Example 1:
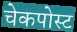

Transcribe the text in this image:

चेकपोस्ट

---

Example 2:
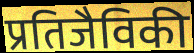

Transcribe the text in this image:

प्रतिजैविकी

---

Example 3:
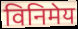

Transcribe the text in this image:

विनिमेय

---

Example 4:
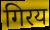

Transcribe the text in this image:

गिरय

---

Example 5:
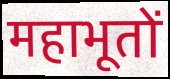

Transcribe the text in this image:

महाभूतों